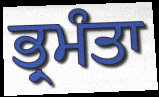
ਭ੍ਰਮੰਤਾ